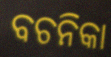
ବଚନିକା